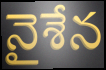
నైశేన